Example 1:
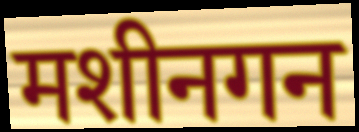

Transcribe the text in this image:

मशीनगन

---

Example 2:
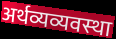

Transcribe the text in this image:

अर्थव्यव्यवस्था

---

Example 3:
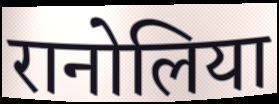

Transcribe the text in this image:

रानोलिया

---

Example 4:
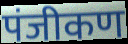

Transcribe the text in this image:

पंजीकण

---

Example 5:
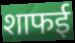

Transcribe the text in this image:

शाफई